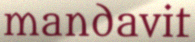
mandavit